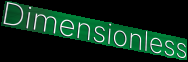
Dimensionless